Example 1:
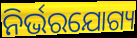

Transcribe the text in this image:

ନିର୍ଭରଯୋଗ୍ୟ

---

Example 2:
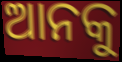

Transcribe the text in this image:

ଆନକୁ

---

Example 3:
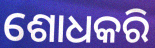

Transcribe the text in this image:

ଶୋଧକରି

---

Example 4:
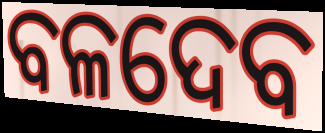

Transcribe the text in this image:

ବଳଦେବ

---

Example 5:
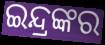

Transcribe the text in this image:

ଇନ୍ଦ୍ରଙ୍କର